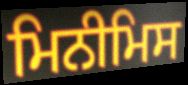
ਮਿਨੀਮਿਸ